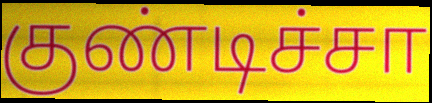
குண்டிச்சா